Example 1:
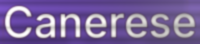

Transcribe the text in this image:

Canerese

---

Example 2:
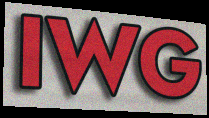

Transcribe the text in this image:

IWG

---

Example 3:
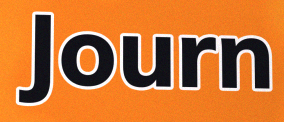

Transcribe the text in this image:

Journ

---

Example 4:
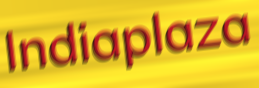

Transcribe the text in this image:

Indiaplaza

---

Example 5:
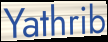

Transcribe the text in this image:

Yathrib